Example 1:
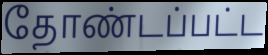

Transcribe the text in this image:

தோண்டப்பட்ட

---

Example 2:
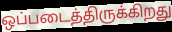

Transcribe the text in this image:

ஒப்படைத்திருக்கிறது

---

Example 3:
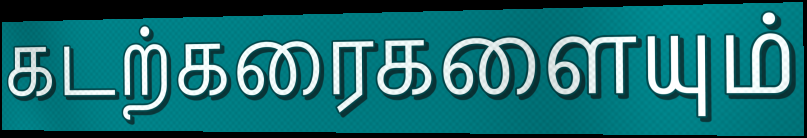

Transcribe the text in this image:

கடற்கரைகளையும்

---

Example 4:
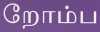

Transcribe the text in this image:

றோம்ப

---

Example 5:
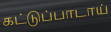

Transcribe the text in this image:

கட்டுப்பாடாய்